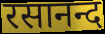
रसानन्द